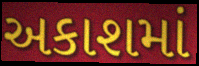
અકાશમાં